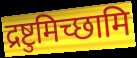
द्रष्टुमिच्छामि